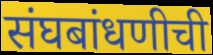
संघबांधणीची